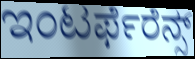
ಇಂಟರ್ಫೆರೆನ್ಸ್